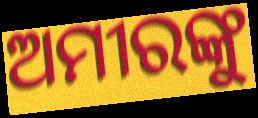
ଅମୀରଙ୍କୁ